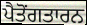
ਪੈਤੋਂਗਤਾਰਨ